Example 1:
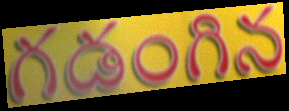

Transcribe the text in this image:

గడంగిన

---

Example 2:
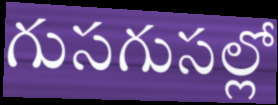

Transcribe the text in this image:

గుసగుసల్లో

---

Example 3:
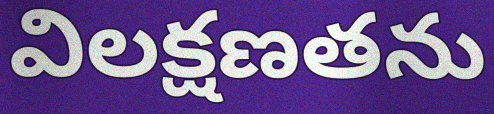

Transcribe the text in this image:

విలక్షణతను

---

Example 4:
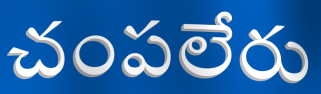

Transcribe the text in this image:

చంపలేరు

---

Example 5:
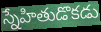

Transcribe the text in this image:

స్నేహితుడొకడు